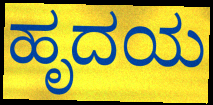
ಹೃದಯ